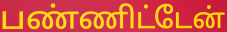
பண்ணிட்டேன்